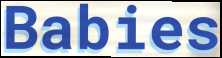
Babies